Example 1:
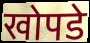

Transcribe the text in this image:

खोपडे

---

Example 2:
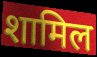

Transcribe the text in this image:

शामिल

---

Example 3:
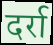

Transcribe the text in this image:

दर्रा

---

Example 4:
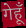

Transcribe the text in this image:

गेहूँ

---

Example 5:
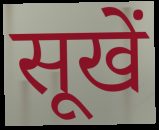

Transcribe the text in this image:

सूखें